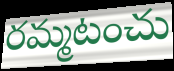
రమ్మటంచు